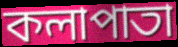
কলাপাতা